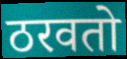
ठरवतो